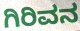
ಗಿರಿವನ